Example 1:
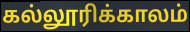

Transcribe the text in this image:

கல்லூரிக்காலம்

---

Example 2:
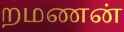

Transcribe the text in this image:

றமணன்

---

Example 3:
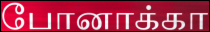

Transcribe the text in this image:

போனாக்கா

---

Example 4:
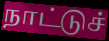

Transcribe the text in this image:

நாட்டுச்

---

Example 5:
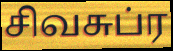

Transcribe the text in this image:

சிவசுப்ர